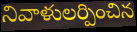
నివాళులర్పించిన